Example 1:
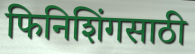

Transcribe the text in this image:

फिनिशिंगसाठी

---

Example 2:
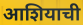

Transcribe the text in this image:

आशियाची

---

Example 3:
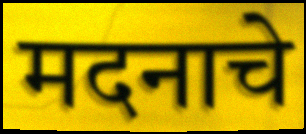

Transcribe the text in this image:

मदनाचे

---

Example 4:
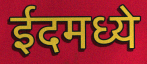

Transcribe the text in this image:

ईदमध्ये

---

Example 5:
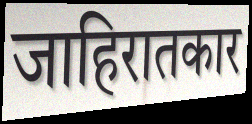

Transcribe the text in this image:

जाहिरातकार